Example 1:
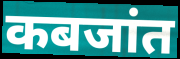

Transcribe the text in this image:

कबजांत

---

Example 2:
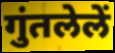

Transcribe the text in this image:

गुंतलेलें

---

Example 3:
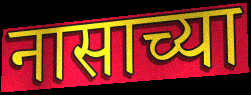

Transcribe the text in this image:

नासाच्या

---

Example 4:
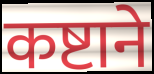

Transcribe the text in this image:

कष्टाने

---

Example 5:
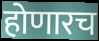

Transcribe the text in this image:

होणारच